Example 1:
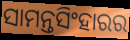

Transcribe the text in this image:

ସାମନ୍ତସିଂହାରର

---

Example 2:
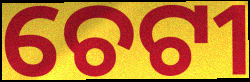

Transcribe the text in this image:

ଚେଟୀ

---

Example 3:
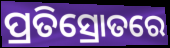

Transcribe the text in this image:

ପ୍ରତିସ୍ରୋତରେ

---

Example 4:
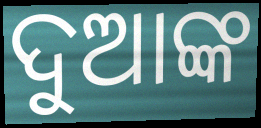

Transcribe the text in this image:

ଦୁଆଙ୍କ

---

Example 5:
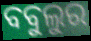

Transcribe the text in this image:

ବବୁଲୁର